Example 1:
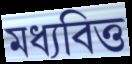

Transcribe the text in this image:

মধ্যবিত্ত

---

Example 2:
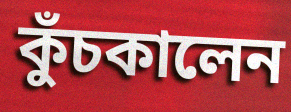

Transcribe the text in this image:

কুঁচকালেন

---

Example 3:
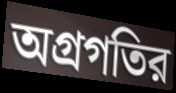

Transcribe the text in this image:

অগ্রগতির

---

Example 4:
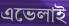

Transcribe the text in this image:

এভেলাই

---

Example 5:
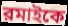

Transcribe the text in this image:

রমাইকে